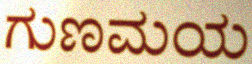
ಗುಣಮಯ